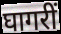
घागरीं